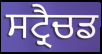
ਸਟ੍ਰੈਚਡ